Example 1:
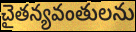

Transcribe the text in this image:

చైతన్యవంతులను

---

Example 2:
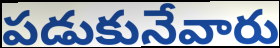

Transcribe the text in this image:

పడుకునేవారు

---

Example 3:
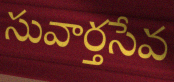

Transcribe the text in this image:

సువార్తసేవ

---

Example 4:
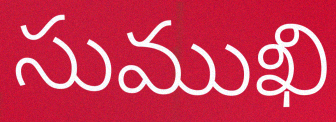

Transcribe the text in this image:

సుముఖి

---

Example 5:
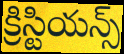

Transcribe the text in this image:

క్రిస్టియన్స్